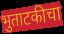
भुताटकीचा